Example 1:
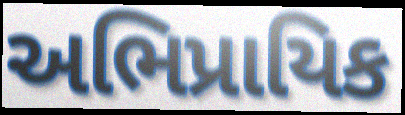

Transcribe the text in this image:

અભિપ્રાયિક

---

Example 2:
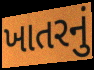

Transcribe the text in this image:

ખાતરનું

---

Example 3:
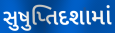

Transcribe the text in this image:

સુષુપ્તિદશામાં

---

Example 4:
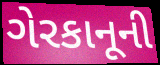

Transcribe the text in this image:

ગેરકાનૂની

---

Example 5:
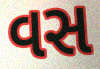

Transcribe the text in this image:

વસ